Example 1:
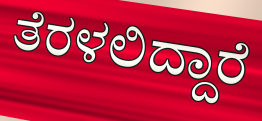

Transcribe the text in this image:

ತೆರಳಲಿದ್ದಾರೆ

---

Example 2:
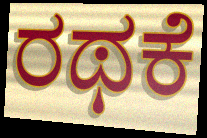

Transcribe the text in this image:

ರಥಕೆ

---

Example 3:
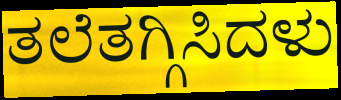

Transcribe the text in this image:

ತಲೆತಗ್ಗಿಸಿದಳು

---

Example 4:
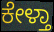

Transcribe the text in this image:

ಕೇಳ್ತಾ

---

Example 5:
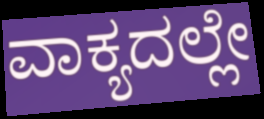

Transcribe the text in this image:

ವಾಕ್ಯದಲ್ಲೇ